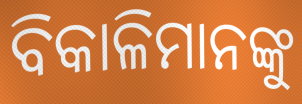
ବିକାଳିମାନଙ୍କୁ